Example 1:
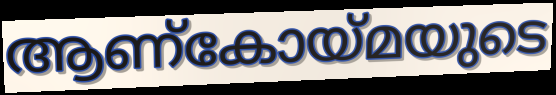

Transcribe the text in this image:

ആണ്കോയ്മയുടെ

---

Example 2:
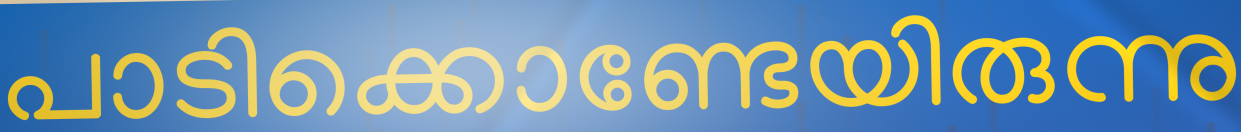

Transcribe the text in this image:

പാടിക്കൊണ്ടേയിരുന്നു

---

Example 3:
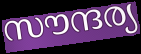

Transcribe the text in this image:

സൗന്ദര്യ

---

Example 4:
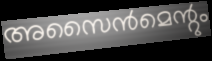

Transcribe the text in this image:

അസൈൻമെന്റും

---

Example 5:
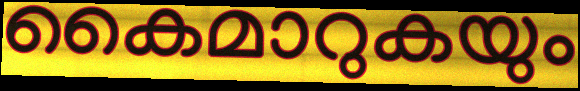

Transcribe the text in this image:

കൈമാറുകയും